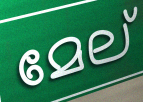
മേല്